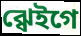
ঝ্ৱেইগে